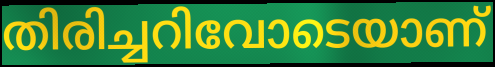
തിരിച്ചറിവോടെയാണ്